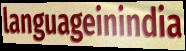
languageinindia